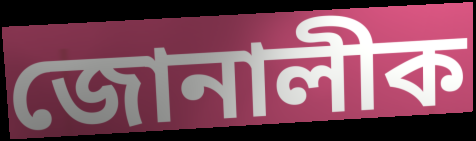
জোনালীক